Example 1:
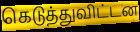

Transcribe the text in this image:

கெடுத்துவிட்டன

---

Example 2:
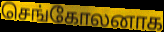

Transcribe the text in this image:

செங்கோலனாக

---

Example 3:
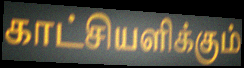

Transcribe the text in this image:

காட்சியளிக்கும்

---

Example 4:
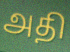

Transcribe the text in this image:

அதி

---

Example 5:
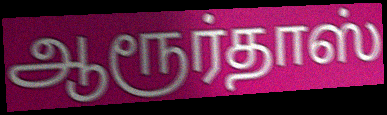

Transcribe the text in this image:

ஆரூர்தாஸ்